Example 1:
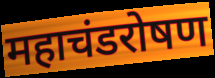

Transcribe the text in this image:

महाचंडरोषण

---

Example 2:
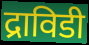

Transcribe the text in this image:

द्राविडी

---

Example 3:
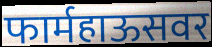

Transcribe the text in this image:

फार्महाऊसवर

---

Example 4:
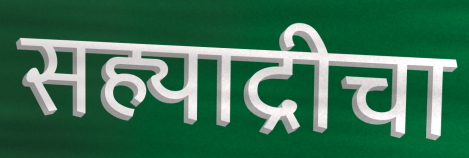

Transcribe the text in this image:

सह्याद्रीचा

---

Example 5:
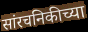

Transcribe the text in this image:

सांरचनिकीच्या